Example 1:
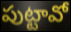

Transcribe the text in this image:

పుట్టావో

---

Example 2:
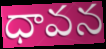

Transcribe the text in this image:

ధావన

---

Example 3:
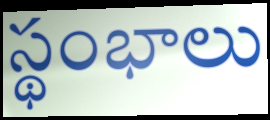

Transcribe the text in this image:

స్థంభాలు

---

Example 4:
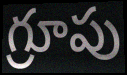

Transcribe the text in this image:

గ్రూపు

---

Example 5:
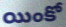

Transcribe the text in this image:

యింకో